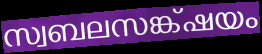
സ്വബലസങ്ക്ഷയം